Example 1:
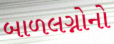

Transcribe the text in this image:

બાળલગ્નોનો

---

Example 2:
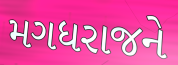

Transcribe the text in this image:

મગધરાજને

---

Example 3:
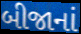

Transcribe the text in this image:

બીજાનાં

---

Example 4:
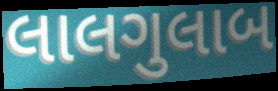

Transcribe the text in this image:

લાલગુલાબ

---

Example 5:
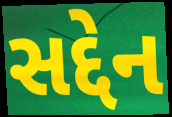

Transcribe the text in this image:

સદ્દેન